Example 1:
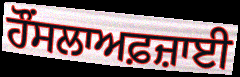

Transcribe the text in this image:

ਹੌਂਸਲਾਅਫ਼ਜ਼ਾਈ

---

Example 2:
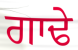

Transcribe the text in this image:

ਗਾਢੇ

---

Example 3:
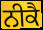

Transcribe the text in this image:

ਨੀਕੈ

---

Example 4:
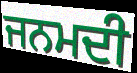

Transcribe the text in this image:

ਜਨਮਦੀ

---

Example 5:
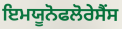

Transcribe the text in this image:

ਇਮਯੂਨੋਫਲੋਰੇਸੈਂਸ